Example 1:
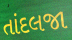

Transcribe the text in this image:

તાંદલજા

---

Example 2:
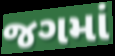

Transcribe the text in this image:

જગમાં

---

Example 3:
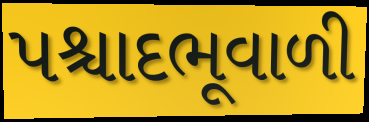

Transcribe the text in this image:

પશ્ચાદભૂવાળી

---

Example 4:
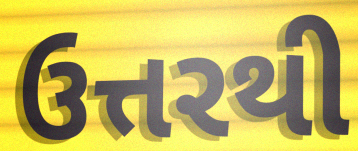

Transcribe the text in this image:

ઉત્તરથી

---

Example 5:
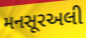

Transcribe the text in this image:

મનસૂરઅલી